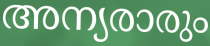
അന്യരാരും